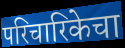
परिचारिकेचा